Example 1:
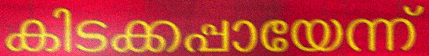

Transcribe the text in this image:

കിടക്കപ്പായേന്ന്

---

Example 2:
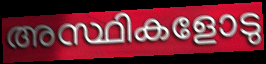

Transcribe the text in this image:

അസ്ഥികളോടു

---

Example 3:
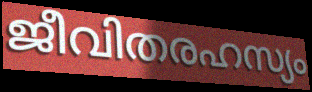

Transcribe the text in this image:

ജീവിതരഹസ്യം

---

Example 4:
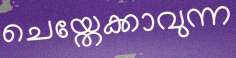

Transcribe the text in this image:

ചെയ്തേക്കാവുന്ന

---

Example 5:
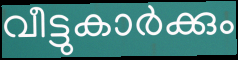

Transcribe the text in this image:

വീട്ടുകാർക്കും